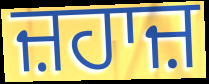
ਜ਼ਹਾਜ਼